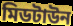
মিডটাউন